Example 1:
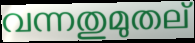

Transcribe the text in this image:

വന്നതുമുതല്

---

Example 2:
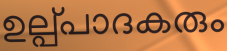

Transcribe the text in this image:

ഉല്പ്പാദകരും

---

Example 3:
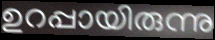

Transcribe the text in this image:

ഉറപ്പായിരുന്നു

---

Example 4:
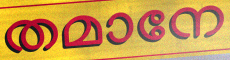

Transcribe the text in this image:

തമാനേ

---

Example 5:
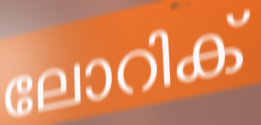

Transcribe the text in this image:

ലോറിക്